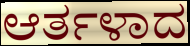
ಆರ್ತಳಾದ